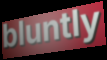
bluntly